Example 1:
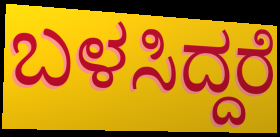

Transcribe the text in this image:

ಬಳಸಿದ್ದರೆ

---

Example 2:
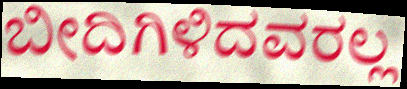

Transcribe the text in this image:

ಬೀದಿಗಿಳಿದವರಲ್ಲ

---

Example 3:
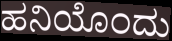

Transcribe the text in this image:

ಹನಿಯೊಂದು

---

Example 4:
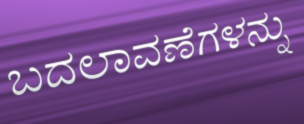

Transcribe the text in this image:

ಬದಲಾವಣೆಗಳನ್ನು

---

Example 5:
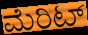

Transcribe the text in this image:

ಮೆರಿಟ್